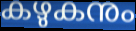
കഴുകനും